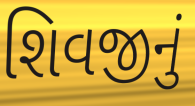
શિવજીનું